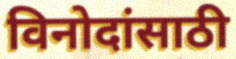
विनोदांसाठी